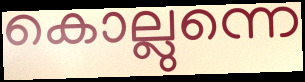
കൊല്ലുന്നെ